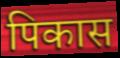
पिकास